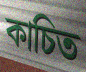
কাচিত